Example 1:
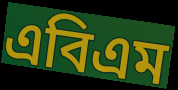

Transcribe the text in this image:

এবিএম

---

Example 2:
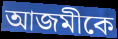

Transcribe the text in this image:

আজমীকে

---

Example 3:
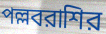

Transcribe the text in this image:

পল্লবরাশির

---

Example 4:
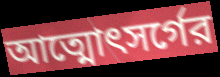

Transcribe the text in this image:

আত্মোৎসর্গের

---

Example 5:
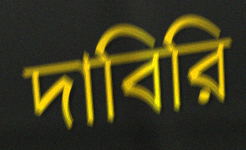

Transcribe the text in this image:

দাবিরি